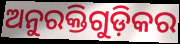
ଅନୁରକ୍ତିଗୁଡ଼ିକର